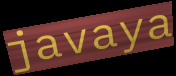
javaya